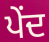
ਪੇਂਦ